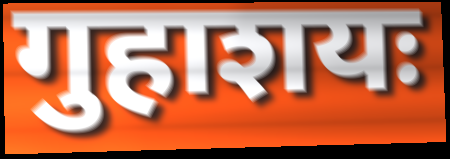
गुहाशयः